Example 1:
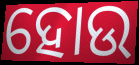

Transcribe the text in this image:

ହୋଉ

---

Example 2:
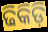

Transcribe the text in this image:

ଢିକିଡ଼ି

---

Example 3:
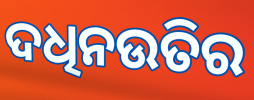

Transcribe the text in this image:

ଦଧିନଉତିର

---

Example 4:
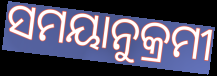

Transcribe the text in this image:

ସମୟାନୁକ୍ରମୀ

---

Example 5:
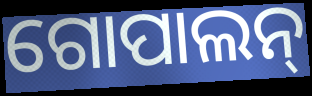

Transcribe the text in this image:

ଗୋପାଲନ୍